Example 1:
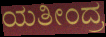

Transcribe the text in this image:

ಯತೀಂದ್ರ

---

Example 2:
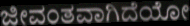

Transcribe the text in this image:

ಜೀವಂತವಾಗಿದೆಯೋ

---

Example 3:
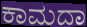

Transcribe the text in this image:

ಕಾಮದಾ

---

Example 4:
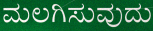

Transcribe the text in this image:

ಮಲಗಿಸುವುದು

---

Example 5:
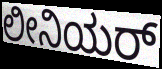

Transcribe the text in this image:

ಲೀನಿಯರ್